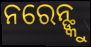
ନରେନ୍ଙ୍କୁ